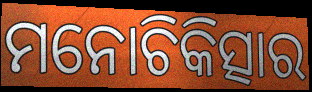
ମନୋଚିକିତ୍ସାର